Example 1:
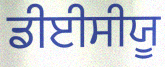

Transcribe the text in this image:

ਡੀਈਸੀਯੂ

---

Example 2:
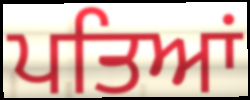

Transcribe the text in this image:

ਪਤਿਆਂ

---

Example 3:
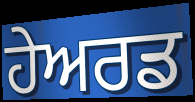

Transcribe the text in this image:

ਹੇਅਰਡ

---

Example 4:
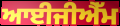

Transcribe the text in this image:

ਆਈਜੀਐੱਮ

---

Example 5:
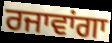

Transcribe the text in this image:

ਰਜਾਵਾਂਗਾ